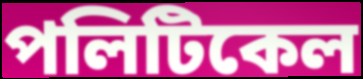
পলিটিকেল